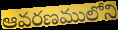
ఆవరణములోని